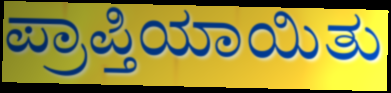
ಪ್ರಾಪ್ತಿಯಾಯಿತು